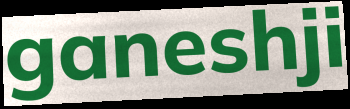
ganeshji